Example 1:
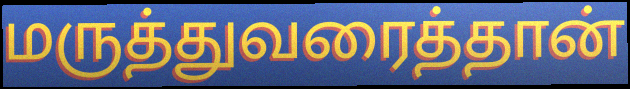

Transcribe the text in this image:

மருத்துவரைத்தான்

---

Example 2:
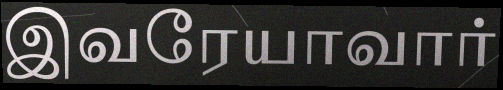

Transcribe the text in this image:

இவரேயாவார்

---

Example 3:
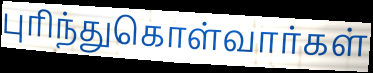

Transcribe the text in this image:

புரிந்துகொள்வார்கள்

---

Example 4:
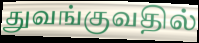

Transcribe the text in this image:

துவங்குவதில்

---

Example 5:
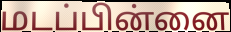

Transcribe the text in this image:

மடப்பின்னை